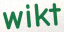
wikt